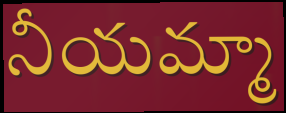
నీయమ్మా